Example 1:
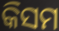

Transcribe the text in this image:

କିସମ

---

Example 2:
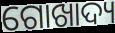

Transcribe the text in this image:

ଗୋଖାଦ୍ୟ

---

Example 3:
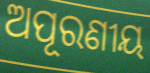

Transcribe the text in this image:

ଅପୂରଣୀୟ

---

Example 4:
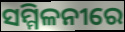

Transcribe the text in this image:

ସମ୍ମିଳନୀରେ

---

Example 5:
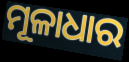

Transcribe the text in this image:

ମୂଳାଧାର